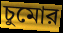
চুমোর